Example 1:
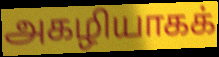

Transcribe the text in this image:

அகழியாகக்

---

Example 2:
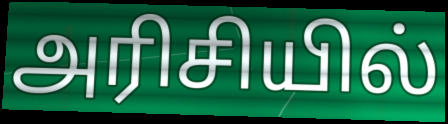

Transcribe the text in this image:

அரிசியில்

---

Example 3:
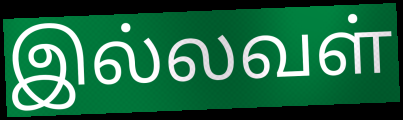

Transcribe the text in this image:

இல்லவள்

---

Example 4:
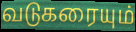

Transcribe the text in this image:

வடுகரையும்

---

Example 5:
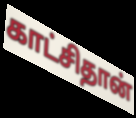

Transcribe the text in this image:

காட்சிதான்